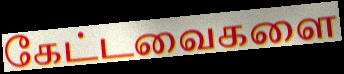
கேட்டவைகளை